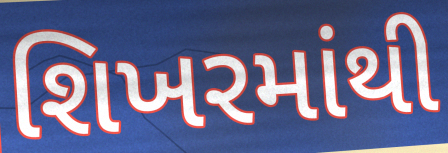
શિખરમાંથી